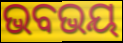
ଭବଭୟ